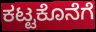
ಕಟ್ಟಕೊನೆಗೆ